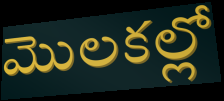
మొలకల్లో